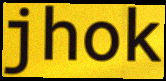
jhok